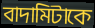
বাদামিটাকে